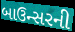
બાઉન્સરની